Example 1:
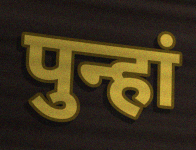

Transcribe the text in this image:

पुन्हां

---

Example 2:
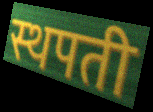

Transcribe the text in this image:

स्थपती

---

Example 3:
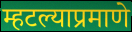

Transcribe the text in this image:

म्हटल्याप्रमाणे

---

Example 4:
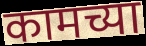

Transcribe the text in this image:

कामच्या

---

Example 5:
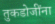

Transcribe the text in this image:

तुकडोजींना